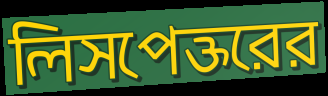
লিসপেক্তরের